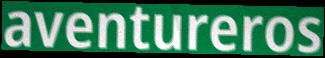
aventureros